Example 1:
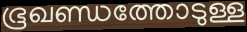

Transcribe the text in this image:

ഭൂഖണ്ഡത്തോടുള്ള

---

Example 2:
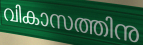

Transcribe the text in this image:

വികാസത്തിനു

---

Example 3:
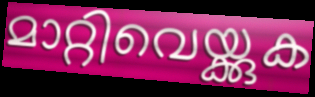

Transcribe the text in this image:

മാറ്റിവെയ്ക്കുക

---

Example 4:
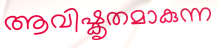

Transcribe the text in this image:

ആവിഷ്കൃതമാകുന്ന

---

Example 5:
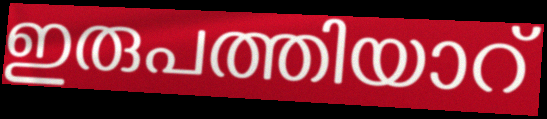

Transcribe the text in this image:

ഇരുപത്തിയാറ്